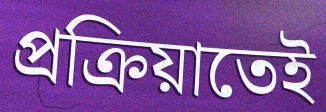
প্রক্রিয়াতেই